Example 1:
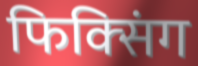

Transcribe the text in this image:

फिक्‍सिंग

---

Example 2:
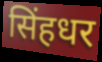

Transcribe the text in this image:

सिंहधर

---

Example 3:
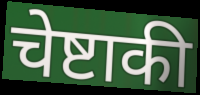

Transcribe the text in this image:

चेष्टाकी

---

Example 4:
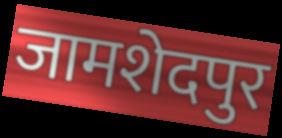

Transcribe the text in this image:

जामशेदपुर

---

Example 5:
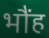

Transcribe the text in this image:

भौंह